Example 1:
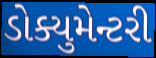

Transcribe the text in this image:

ડોક્યુમેન્ટરી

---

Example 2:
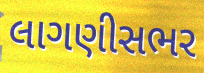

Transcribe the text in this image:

લાગણીસભર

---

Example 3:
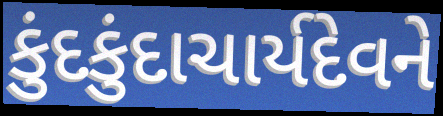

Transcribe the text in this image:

કુંદકુંદાચાર્યદેવને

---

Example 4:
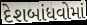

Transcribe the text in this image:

દેશબાંધવોમાં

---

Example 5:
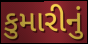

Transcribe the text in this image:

કુમારીનું